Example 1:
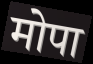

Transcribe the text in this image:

मोपा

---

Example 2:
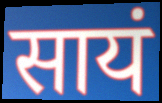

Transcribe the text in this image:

सायं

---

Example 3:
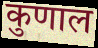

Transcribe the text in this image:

कुणाल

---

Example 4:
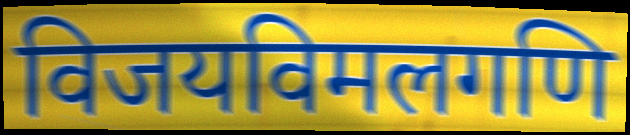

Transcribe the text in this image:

विजयविमलगणि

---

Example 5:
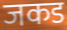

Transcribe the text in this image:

जकड